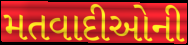
મતવાદીઓની